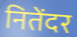
नितेंदर